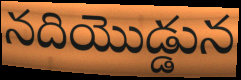
నదియొడ్డున